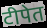
टीपेत